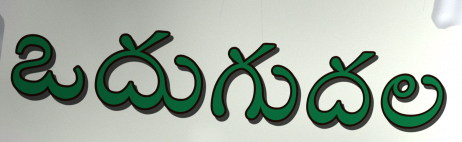
ఒదుగుదల